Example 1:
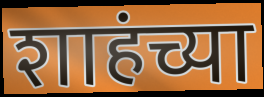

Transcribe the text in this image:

शाहंच्या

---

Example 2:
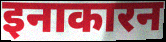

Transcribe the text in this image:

इनाकारन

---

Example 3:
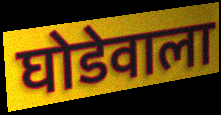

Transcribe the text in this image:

घोडेवाला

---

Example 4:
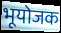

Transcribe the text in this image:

भूयोजक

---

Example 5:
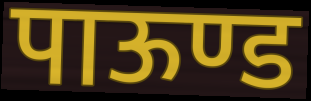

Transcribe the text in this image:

पाऊण्ड